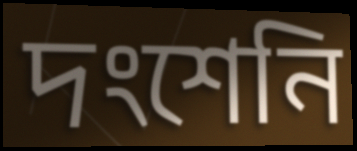
দংশেনি